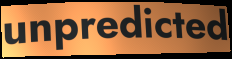
unpredicted